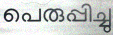
പെരുപ്പിച്ചു